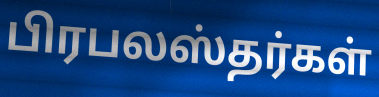
பிரபலஸ்தர்கள்